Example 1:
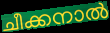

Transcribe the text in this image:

ചീക്കനാൽ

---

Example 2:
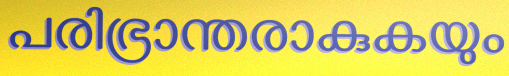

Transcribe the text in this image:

പരിഭ്രാന്തരാകുകയും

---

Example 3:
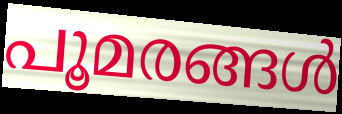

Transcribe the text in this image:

പൂമരങ്ങൾ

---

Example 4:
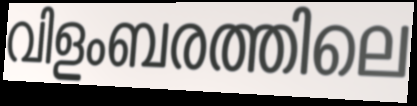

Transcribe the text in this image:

വിളംബരത്തിലെ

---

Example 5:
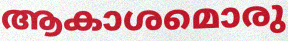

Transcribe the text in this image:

ആകാശമൊരു